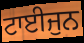
ਟਾਈਜੁਨ